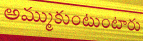
అమ్ముకుంటుంటారు